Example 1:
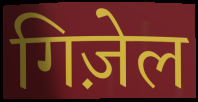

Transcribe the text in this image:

गिज़ेल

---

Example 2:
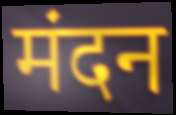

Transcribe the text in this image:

मंदन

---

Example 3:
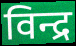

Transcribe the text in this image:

विन्द्र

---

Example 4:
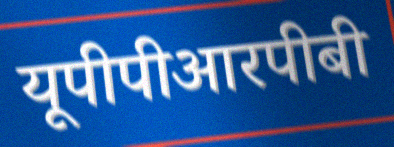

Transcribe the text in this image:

यूपीपीआरपीबी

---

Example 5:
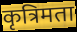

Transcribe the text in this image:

कृत्रिमता